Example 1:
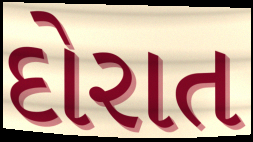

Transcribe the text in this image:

દોરાત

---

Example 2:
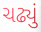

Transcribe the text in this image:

ચઢ્યું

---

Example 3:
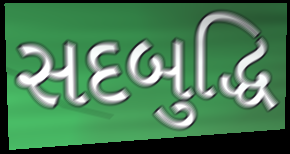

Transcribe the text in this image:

સદબુદ્ધિ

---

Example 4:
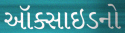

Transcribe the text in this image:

ઑક્સાઇડનો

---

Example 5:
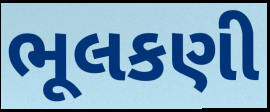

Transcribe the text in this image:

ભૂલકણી